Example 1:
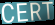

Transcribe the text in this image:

CERT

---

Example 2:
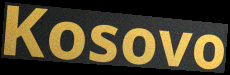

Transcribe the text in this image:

Kosovo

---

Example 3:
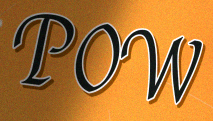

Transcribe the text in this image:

POW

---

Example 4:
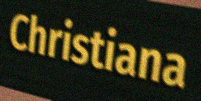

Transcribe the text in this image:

Christiana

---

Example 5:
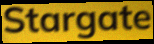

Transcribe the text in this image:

Stargate